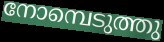
നോമ്പെടുത്തു